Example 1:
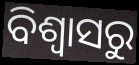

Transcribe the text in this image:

ବିଶ୍ବାସରୁ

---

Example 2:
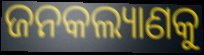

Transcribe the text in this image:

ଜନକଲ୍ୟାଣକୁ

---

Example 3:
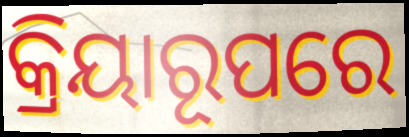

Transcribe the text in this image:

କ୍ରିୟାରୂପରେ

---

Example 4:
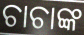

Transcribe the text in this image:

ଚାଚାଙ୍କ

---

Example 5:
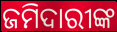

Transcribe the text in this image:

ଜମିଦାରୀଙ୍କ